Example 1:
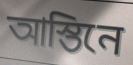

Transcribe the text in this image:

আস্তিনে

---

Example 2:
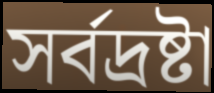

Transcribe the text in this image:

সর্বদ্রষ্টা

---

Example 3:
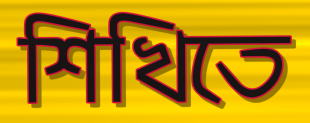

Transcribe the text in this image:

শিখিতে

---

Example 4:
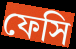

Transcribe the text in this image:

ফেসি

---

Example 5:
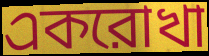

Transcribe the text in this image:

একরোখা